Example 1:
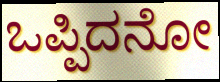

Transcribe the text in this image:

ಒಪ್ಪಿದನೋ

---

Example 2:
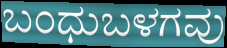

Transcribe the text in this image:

ಬಂಧುಬಳಗವು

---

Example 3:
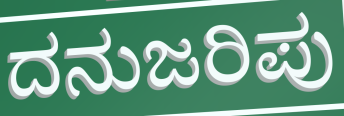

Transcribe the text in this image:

ದನುಜರಿಪು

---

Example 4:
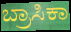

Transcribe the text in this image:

ಬ್ರಾಸಿಕಾ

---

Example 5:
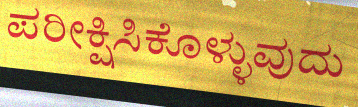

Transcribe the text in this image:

ಪರೀಕ್ಷಿಸಿಕೊಳ್ಳುವುದು